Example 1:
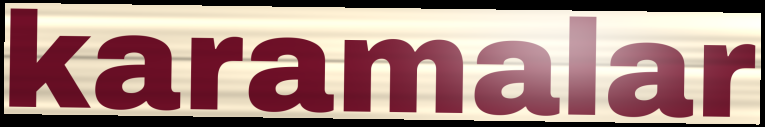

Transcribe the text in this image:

karamalar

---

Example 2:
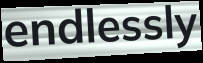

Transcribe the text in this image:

endlessly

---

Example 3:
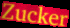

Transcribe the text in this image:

Zucker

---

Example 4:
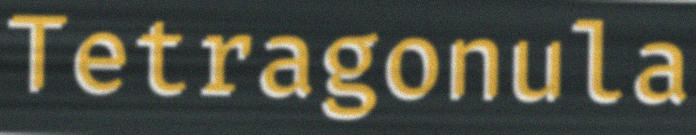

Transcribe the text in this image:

Tetragonula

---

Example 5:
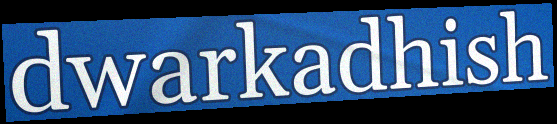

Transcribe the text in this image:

dwarkadhish